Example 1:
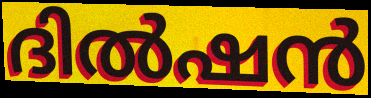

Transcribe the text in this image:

ദിൽഷൻ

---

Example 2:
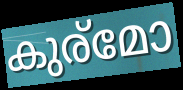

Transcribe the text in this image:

കുര്മോ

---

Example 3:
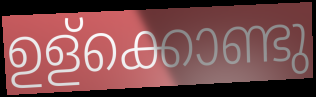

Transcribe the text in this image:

ഉള്ക്കൊണ്ടു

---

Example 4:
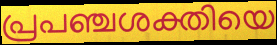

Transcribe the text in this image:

പ്രപഞ്ചശക്തിയെ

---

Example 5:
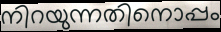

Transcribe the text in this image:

നിറയുന്നതിനൊപ്പം